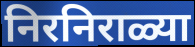
निरनिराळ्या